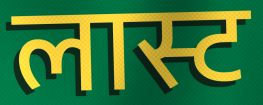
लास्ट